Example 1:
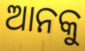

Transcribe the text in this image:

ଆନକୁ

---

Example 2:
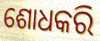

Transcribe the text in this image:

ଶୋଧକରି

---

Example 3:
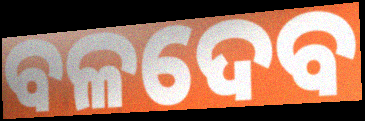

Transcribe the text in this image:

ବଳଦେବ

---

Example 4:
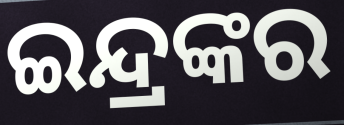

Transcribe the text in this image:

ଇନ୍ଦ୍ରଙ୍କର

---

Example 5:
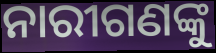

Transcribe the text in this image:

ନାରୀଗଣଙ୍କୁ